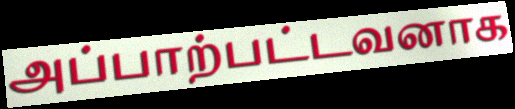
அப்பாற்பட்டவனாக